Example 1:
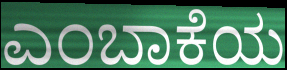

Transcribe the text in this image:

ಎಂಬಾಕೆಯ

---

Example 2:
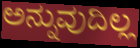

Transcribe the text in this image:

ಅನ್ನುವುದಿಲ್ಲ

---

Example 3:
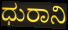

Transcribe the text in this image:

ಧುರಾನಿ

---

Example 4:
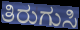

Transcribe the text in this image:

ತಿರುಗುಸಿ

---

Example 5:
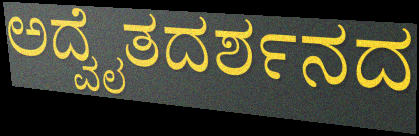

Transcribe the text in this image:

ಅದ್ವೈತದರ್ಶನದ